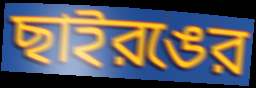
ছাইরঙের